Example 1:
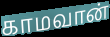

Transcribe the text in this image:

காமவான்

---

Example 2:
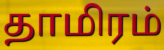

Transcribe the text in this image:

தாமிரம்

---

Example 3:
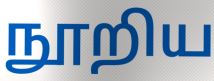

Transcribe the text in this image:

நூறிய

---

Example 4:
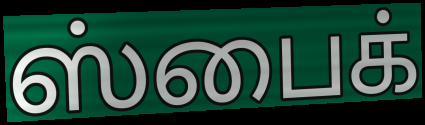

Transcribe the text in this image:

ஸ்பைக்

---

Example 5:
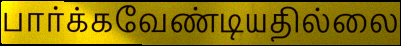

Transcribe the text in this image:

பார்க்கவேண்டியதில்லை